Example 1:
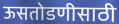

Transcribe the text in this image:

ऊसतोडणीसाठी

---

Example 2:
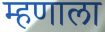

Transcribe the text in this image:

म्हणाला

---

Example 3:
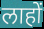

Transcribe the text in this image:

लाहों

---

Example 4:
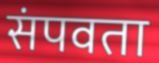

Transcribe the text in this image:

संपवता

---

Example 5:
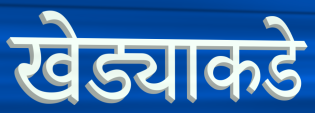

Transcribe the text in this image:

खेड्याकडे